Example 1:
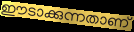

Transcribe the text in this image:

ഈടാക്കുന്നതാണ്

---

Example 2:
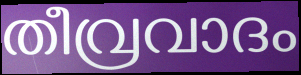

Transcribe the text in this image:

തീവ്രവാദം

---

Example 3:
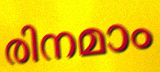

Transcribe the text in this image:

രിനമാം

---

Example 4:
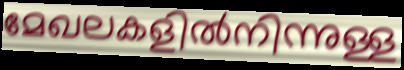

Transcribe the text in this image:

മേഖലകളിൽനിന്നുള്ള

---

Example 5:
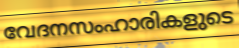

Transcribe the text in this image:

വേദനസംഹാരികളുടെ